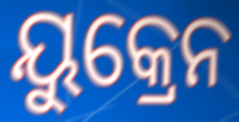
ୟୁକ୍ରେନ